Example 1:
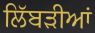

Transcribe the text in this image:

ਲਿੱਬੜੀਆਂ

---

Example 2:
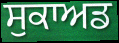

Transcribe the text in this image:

ਸੁਕਾਅਡ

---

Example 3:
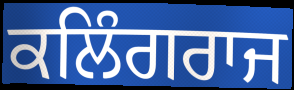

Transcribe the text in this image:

ਕਲਿੰਗਰਾਜ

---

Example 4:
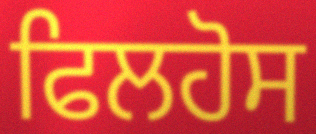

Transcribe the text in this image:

ਫਿਲਹੋਸ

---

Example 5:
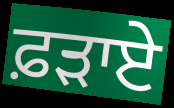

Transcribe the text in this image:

ਫ਼ੜਾਏ